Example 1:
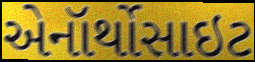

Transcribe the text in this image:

એનૉર્થોસાઇટ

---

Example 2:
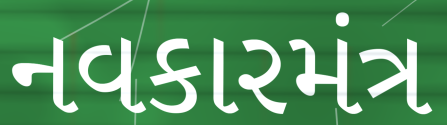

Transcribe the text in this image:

નવકારમંત્ર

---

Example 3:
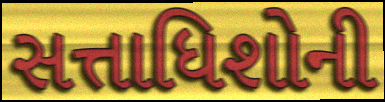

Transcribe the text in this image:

સત્તાધિશોની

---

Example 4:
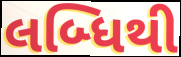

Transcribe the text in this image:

લબ્ધિથી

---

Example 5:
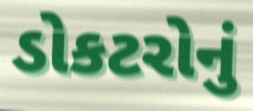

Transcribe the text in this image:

ડોકટરોનું